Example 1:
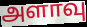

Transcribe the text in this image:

அளாவு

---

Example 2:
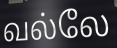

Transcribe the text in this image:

வல்லே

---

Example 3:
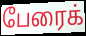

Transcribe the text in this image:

பேரைக்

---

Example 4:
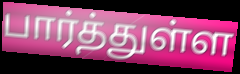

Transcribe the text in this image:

பார்த்துள்ள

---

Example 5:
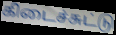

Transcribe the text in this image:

கிடைச்சுட்டு